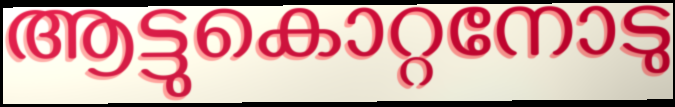
ആട്ടുകൊറ്റനോടു